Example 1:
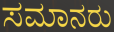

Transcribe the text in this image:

ಸಮಾನರು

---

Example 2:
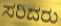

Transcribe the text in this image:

ಸರಿದರು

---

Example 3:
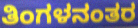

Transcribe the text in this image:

ತಿಂಗಳನಂತರ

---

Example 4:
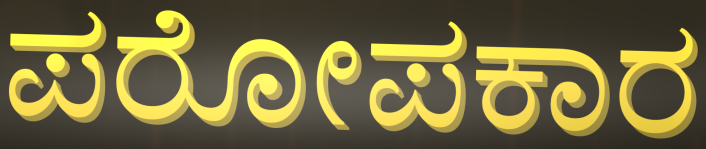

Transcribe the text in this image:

ಪರೋಪಕಾರ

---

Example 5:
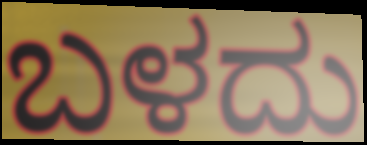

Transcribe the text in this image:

ಬಳದು